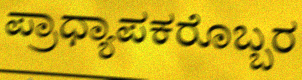
ಪ್ರಾಧ್ಯಾಪಕರೊಬ್ಬರ